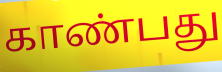
காண்பது